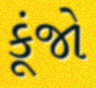
કૂંજો